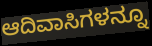
ಆದಿವಾಸಿಗಳನ್ನೂ